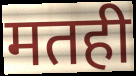
मतही